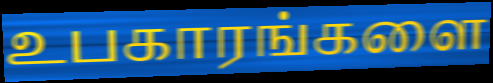
உபகாரங்களை